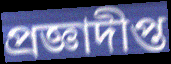
প্রজ্ঞাদীপ্ত